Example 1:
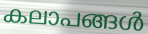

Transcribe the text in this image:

കലാപങ്ങൾ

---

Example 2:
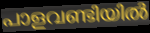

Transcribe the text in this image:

പാളവണ്ടിയിൽ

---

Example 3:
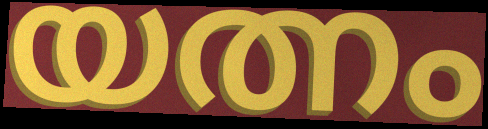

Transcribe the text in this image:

യത്നം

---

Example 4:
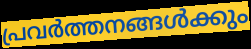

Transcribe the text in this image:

പ്രവർത്തനങ്ങൾക്കും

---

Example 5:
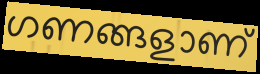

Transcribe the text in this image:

ഗണങ്ങളാണ്